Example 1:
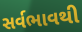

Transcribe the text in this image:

સર્વભાવથી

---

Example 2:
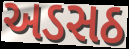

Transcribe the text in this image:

અડસઠ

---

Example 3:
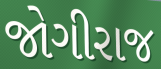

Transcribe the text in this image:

જોગીરાજ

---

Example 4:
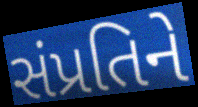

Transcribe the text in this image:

સંપ્રતિને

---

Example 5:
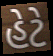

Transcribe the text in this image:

હેટે